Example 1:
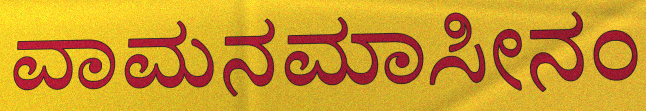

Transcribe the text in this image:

ವಾಮನಮಾಸೀನಂ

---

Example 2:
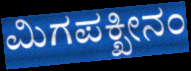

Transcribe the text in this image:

ಮಿಗಪಕ್ಖೀನಂ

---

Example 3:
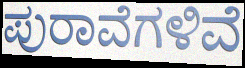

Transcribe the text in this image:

ಪುರಾವೆಗಳಿವೆ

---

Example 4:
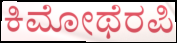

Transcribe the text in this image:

ಕಿಮೋಥೆರಪಿ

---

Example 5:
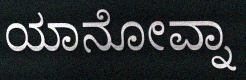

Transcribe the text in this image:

ಯಾನೋವ್ನಾ